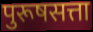
पुरूषसत्ता